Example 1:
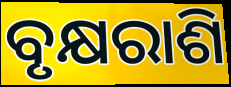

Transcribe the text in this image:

ବୃକ୍ଷରାଶି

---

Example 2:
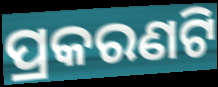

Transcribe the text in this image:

ପ୍ରକରଣଟି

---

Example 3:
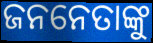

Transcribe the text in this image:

ଜନନେତାଙ୍କୁ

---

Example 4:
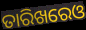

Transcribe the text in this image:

ତାରିଖରେଓ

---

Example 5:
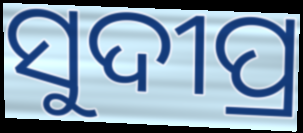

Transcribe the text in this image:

ସୁଦୀପ୍ର